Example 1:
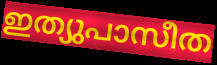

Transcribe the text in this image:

ഇത്യുപാസീത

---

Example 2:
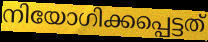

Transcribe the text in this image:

നിയോഗിക്കപ്പെട്ടത്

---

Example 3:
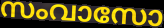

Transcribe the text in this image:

സംവാസോ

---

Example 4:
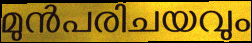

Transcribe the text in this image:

മുൻപരിചയവും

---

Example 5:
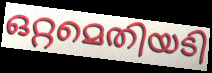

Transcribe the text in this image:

ഒറ്റമെതിയടി